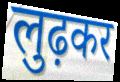
लुढ़कर